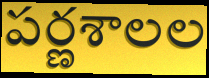
పర్ణశాలల